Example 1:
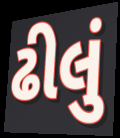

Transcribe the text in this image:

ઢીલું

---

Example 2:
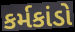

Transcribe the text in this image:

કર્મકાંડો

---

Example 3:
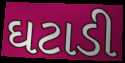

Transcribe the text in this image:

ઘટાડી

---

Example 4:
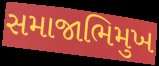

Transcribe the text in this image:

સમાજાભિમુખ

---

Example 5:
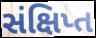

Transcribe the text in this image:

સંક્ષિપ્ત